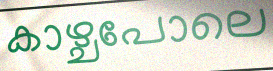
കാഴ്ചപോലെ